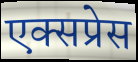
एक्सप्रेस